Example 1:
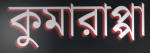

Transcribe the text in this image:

কুমারাপ্পা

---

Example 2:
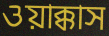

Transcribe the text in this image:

ওয়াক্কাস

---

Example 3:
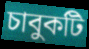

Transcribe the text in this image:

চাবুকটি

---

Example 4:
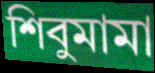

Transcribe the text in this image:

শিবুমামা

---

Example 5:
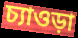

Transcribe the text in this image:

চ্যাওড়া